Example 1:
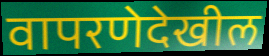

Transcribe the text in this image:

वापरणेदेखील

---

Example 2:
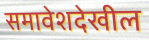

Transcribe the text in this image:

समावेशदेखील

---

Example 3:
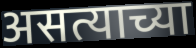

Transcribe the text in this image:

असत्याच्या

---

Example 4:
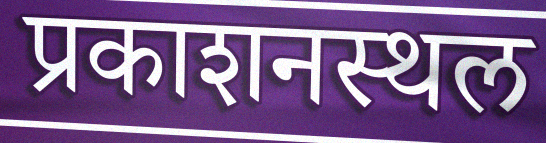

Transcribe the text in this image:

प्रकाशनस्थल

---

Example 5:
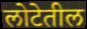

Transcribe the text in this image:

लोटेतील